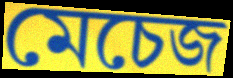
মেচেজ